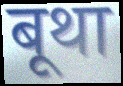
बूथा